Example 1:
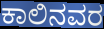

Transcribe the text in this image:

ಕಾಲಿನವರ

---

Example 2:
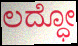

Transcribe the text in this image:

ಲದ್ಧೋ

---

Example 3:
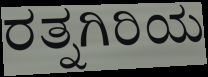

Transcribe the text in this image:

ರತ್ನಗಿರಿಯ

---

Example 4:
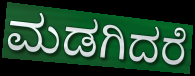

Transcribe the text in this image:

ಮಡಗಿದರೆ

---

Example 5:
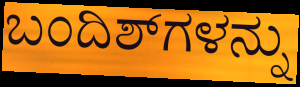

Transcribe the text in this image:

ಬಂದಿಶ್‌ಗಳನ್ನು